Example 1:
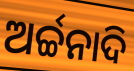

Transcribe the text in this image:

ଅର୍ଚ୍ଚନାଦି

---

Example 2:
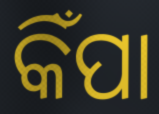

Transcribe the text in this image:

କିଁପା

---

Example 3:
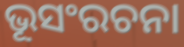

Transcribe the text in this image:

ଭୂସଂରଚନା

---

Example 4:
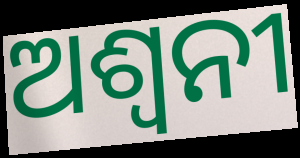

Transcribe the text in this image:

ଅଶ୍ୱନୀ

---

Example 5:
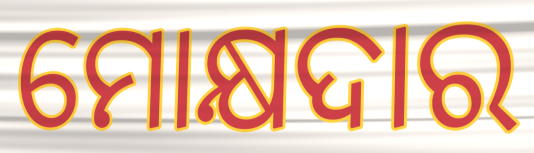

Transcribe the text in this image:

ମୋକ୍ଷଦାର